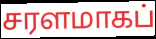
சரளமாகப்